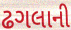
ઢગલાની